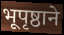
भूपृष्ठाने